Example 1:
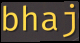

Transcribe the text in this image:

bhaj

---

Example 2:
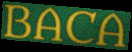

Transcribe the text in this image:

BACA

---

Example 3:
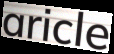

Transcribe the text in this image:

aricle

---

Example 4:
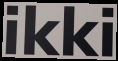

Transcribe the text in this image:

ikki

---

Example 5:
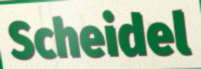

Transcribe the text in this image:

Scheidel